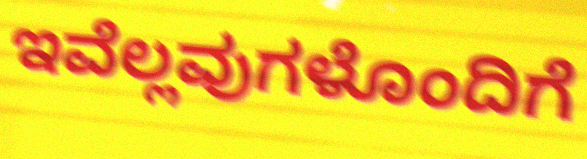
ಇವೆಲ್ಲವುಗಳೊಂದಿಗೆ